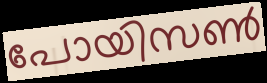
പോയിസൺ